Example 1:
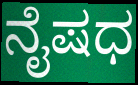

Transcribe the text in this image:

ನೈಷಧ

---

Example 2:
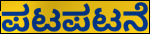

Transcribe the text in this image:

ಪಟಪಟನೆ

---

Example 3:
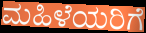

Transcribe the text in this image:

ಮಹಿಳೆಯರಿಗೆ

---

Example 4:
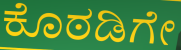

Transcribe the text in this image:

ಕೊಠಡಿಗೇ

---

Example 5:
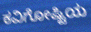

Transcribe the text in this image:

ಕವಿಗೋಷ್ಟಿಯ